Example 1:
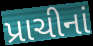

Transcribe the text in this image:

પ્રાચીનાં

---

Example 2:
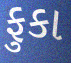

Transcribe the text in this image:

ફુકા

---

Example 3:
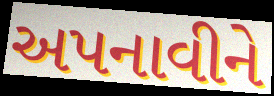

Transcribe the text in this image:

અપનાવીને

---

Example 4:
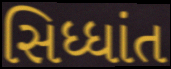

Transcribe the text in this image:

સિધ્ધાંત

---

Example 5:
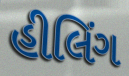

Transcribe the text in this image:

હીલિંગ